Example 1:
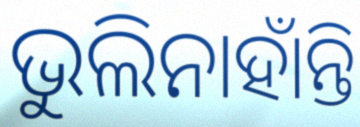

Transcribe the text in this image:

ଭୁଲିନାହାଁନ୍ତି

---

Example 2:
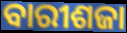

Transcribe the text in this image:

ବାରୀଶଜା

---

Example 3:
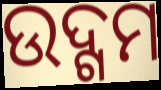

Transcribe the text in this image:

ଉଦ୍ଗମ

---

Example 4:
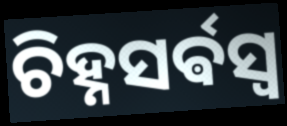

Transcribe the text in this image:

ଚିହ୍ନସର୍ଵସ୍ଵ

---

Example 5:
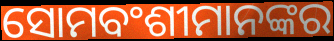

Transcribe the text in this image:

ସୋମବଂଶୀମାନଙ୍କର